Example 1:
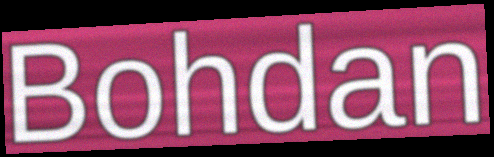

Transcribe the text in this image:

Bohdan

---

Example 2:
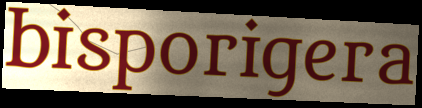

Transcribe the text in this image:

bisporigera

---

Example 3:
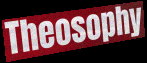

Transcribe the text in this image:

Theosophy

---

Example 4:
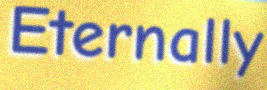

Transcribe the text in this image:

Eternally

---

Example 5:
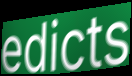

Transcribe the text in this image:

edicts